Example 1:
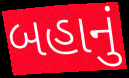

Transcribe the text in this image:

બહાનું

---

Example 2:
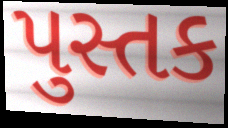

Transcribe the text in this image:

પુસ્તક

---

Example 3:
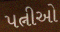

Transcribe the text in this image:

પત્નીઓ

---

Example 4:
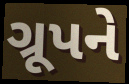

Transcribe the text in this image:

ગ્રૂપને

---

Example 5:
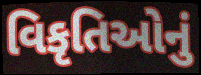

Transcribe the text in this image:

વિકૃતિઓનું